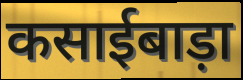
कसाईबाड़ा